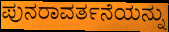
ಪುನರಾವರ್ತನೆಯನ್ನು